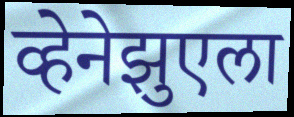
व्हेनेझुएला